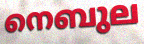
നെബുല